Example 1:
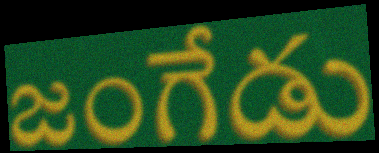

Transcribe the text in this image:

జంగేడు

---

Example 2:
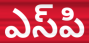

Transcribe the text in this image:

ఎస్‌పి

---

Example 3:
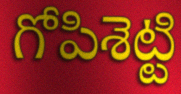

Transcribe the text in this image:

గోపిశెట్టి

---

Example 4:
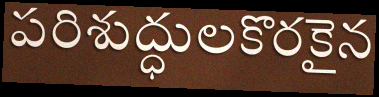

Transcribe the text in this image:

పరిశుద్ధులకొరకైన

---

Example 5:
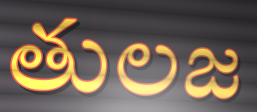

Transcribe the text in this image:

తులజ